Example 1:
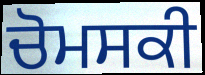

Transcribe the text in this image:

ਚੋਮਸਕੀ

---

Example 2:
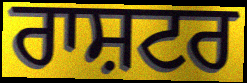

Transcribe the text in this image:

ਰਾਸ਼ਟਰ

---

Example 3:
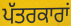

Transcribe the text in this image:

ਪੱਤਰਕਾਰਾਂ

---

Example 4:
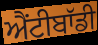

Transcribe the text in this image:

ਐਂਟੀਬਾੱਡੀ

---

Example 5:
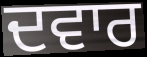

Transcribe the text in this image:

ਦਵਾਰ